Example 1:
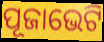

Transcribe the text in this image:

ପୂଜାଭେଟି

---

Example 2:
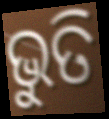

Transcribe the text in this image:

ଭୁତି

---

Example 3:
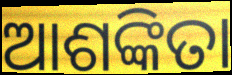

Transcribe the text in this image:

ଆଶଙ୍କିତା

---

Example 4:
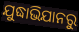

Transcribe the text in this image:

ଯୁଦ୍ଧାଭିଯାନରୁ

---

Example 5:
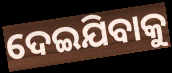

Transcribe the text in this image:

ଦେଇଯିବାକୁ